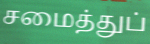
சமைத்துப்